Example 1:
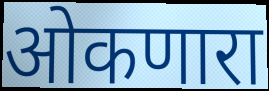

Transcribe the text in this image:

ओकणारा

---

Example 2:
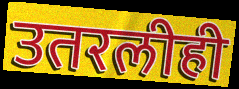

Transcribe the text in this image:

उतरलीही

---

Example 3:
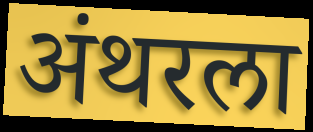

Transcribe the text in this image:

अंथरला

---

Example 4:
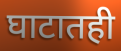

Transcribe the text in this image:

घाटातही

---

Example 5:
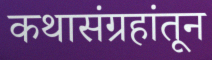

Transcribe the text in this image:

कथासंग्रहांतून